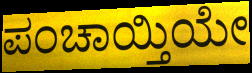
ಪಂಚಾಯ್ತಿಯೇ